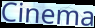
Cinema